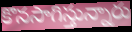
కొనసాగిస్తున్నారు